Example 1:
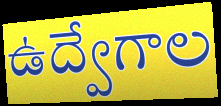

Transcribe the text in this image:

ఉద్వేగాల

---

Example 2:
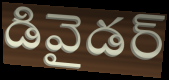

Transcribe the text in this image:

డివైడర్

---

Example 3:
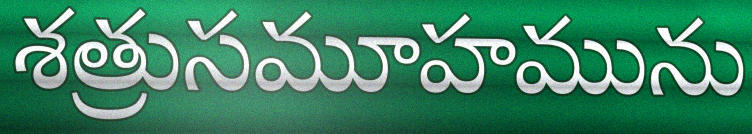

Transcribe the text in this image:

శత్రుసమూహమును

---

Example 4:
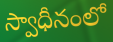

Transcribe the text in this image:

స్వాధీనంలో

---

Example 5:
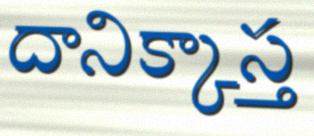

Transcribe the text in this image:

దానిక్కాస్త